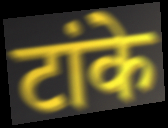
टांके